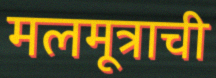
मलमूत्राची